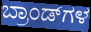
ಬ್ರಾಂಡ್‌ಗಳ